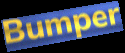
Bumper